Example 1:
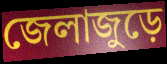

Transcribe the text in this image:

জেলাজুড়ে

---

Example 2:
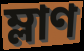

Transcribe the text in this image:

ম্লাণ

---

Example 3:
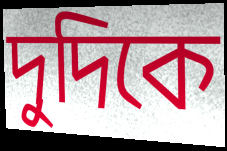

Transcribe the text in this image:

দুদিকে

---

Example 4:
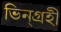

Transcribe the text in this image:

ভিন্গ্রহী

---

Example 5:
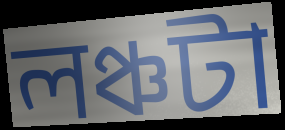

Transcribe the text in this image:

লঞ্চটা